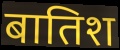
बातिश